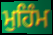
ਮੁਹਿੰਮ